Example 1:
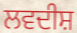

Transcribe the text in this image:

ਲਵਦੀਸ਼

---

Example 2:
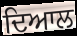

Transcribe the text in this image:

ਦਿਆਲ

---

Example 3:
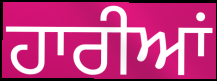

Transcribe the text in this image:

ਹਾਰੀਆਂ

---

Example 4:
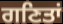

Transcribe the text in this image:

ਗਣਿਤਾਂ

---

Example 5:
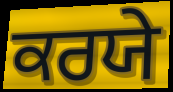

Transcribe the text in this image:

ਕਰਯੇ